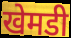
खेमडी